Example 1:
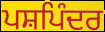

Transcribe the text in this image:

ਪਸ਼ਪਿੰਦਰ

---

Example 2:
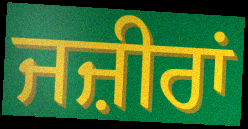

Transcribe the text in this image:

ਜਜ਼ੀਰਾਂ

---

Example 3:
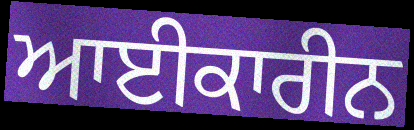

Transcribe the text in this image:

ਆਈਕਾਰੀਨ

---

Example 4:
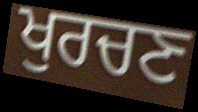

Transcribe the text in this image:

ਖੁਰਚਣ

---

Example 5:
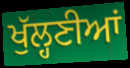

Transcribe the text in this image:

ਖੁੱਲ੍ਹਣੀਆਂ